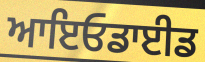
ਆਇਓਡਾਈਡ